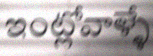
ఇంట్లోవాళ్ళే